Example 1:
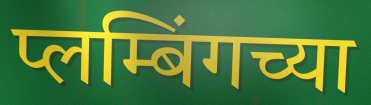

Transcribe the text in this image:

प्लम्बिंगच्या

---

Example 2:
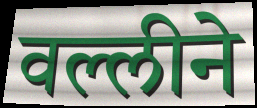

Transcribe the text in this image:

वल्लीने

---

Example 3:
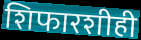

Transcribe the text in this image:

शिफारशीही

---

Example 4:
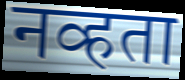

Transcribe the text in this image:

नव्हता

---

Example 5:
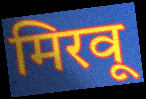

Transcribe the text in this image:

मिरवू